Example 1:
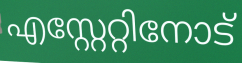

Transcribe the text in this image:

എസ്റ്റേറ്റിനോട്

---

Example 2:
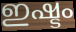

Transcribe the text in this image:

ഇഷ്ടം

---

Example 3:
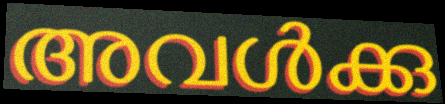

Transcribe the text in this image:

അവൾക്കു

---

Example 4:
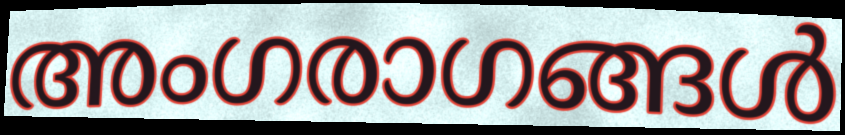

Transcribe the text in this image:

അംഗരാഗങ്ങൾ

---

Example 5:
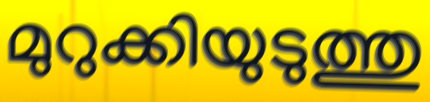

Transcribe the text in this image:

മുറുക്കിയുടുത്തു